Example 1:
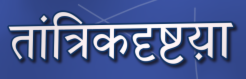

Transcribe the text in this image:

तांत्रिकदृष्टय़ा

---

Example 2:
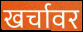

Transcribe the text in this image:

खर्चावर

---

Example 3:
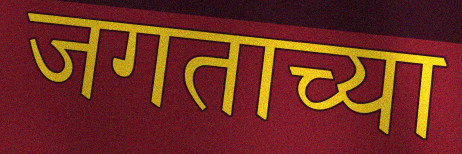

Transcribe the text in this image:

जगताच्या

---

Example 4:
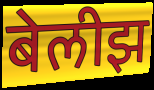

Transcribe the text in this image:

बेलीझ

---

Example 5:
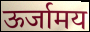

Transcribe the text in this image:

ऊर्जामय